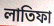
লাতিফা